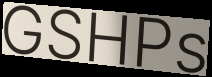
GSHPs